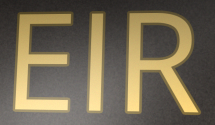
EIR